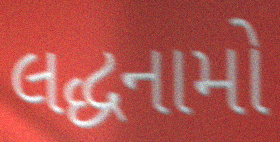
લદ્ધનામો